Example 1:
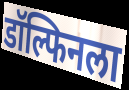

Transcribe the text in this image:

डॉल्फिनला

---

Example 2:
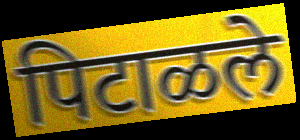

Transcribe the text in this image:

पिटाळले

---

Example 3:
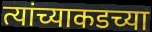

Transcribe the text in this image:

त्यांच्याकडच्या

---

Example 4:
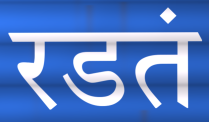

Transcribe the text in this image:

रडतं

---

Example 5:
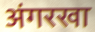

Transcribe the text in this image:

अंगरखा